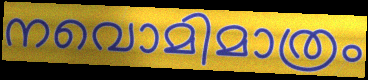
നവൊമിമാത്രം